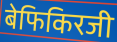
बेफिकिरजी